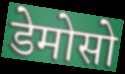
डेमोसो